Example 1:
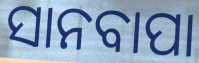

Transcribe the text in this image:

ସାନବାପା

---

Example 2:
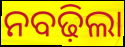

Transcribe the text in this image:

ନବଢ଼ିଲା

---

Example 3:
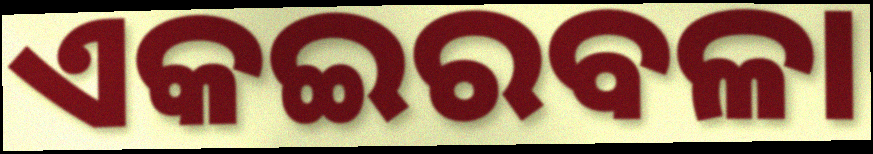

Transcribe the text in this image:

ଏକଇରବଳା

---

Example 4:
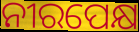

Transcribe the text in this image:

ନୀରପେକ୍ଷ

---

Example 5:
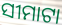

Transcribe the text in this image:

ସୀମାଟା